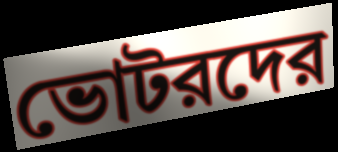
ভোটরদের